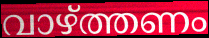
വാഴ്ത്തണം